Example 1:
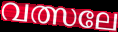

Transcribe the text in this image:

വത്സലേ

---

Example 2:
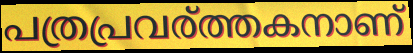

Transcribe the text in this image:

പത്രപ്രവര്ത്തകനാണ്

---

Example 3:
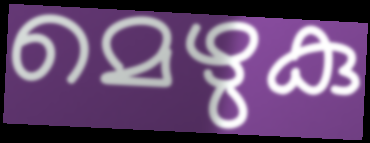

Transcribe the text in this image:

മെഴുകു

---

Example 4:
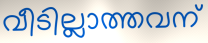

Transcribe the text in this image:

വീടില്ലാത്തവന്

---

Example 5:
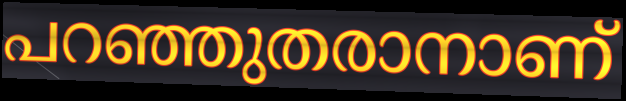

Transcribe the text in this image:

പറഞ്ഞുതരാനാണ്